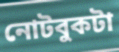
নোটবুকটা